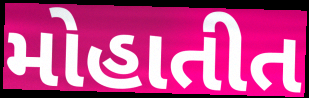
મોહાતીત